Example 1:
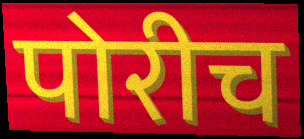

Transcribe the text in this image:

पोरीच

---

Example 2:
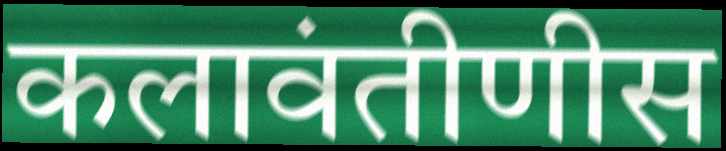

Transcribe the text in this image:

कलावंतीणीस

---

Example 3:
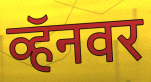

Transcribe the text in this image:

व्हॅनवर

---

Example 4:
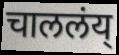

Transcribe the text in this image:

चाललंय्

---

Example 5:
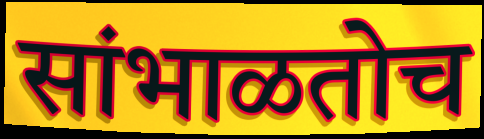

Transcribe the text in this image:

सांभाळतोच